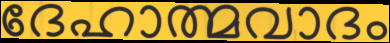
ദേഹാത്മവാദം